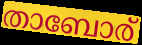
താബോര്